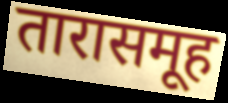
तारासमूह